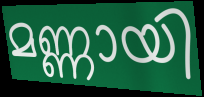
മണ്ണായി